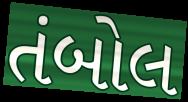
તંબોલ